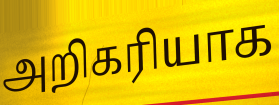
அறிகரியாக